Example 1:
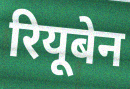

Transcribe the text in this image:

रियूबेन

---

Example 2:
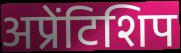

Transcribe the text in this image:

अप्रेंटिशिप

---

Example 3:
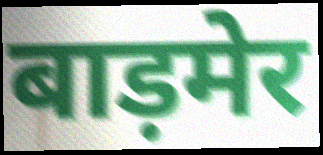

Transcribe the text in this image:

बाड़मेर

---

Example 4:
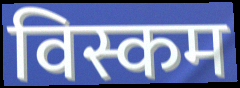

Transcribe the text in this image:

विस्कम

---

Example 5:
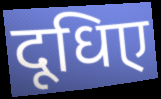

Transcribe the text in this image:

दूधिए